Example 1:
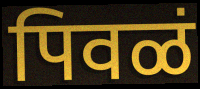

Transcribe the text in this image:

पिवळं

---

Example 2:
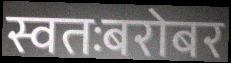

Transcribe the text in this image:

स्वतःबरोबर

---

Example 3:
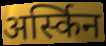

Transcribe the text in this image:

अर्स्किन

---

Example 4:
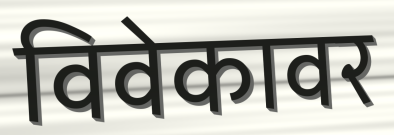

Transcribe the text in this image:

विवेकावर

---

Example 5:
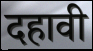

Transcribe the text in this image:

दहावी